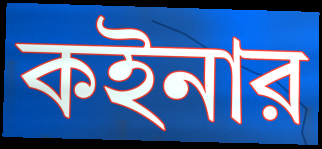
কইনার